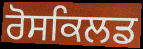
ਰੋਸਕਿਲਡ